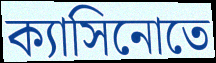
ক্যাসিনোতে